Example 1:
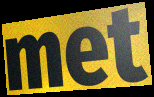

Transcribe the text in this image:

met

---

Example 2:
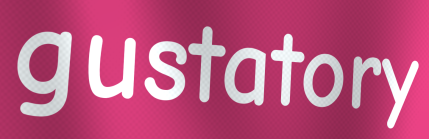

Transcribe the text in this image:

gustatory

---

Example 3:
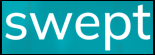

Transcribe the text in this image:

swept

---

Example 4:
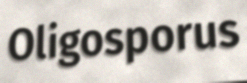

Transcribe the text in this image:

Oligosporus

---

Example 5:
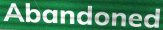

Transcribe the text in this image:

Abandoned